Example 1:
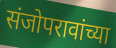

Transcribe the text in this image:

संजोपरावांच्या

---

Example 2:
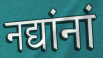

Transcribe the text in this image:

नद्यांनां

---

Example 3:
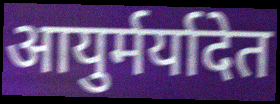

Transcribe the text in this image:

आयुर्मर्यादेत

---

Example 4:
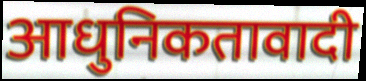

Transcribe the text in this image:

आधुनिकतावादी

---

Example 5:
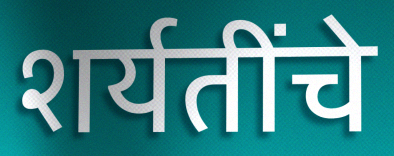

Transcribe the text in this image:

शर्यतींचे